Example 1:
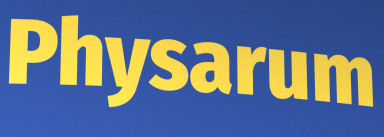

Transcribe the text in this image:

Physarum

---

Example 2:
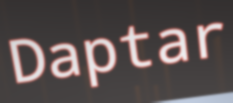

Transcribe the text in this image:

Daptar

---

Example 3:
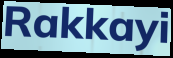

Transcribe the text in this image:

Rakkayi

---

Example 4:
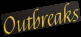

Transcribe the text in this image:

Outbreaks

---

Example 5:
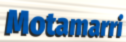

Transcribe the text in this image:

Motamarri